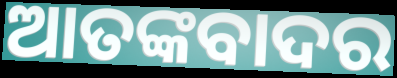
ଆତଙ୍କବାଦର